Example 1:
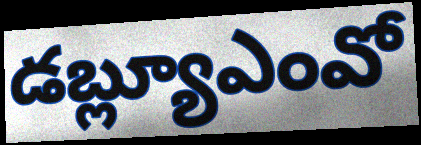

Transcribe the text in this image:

డబ్ల్యూఎంవో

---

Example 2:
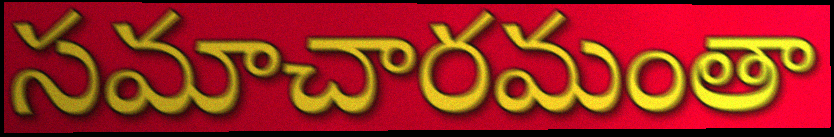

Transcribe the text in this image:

సమాచారమంతా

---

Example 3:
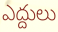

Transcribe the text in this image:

ఎద్దులు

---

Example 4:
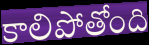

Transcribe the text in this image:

కాలిపోతోంది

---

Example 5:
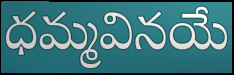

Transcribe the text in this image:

ధమ్మవినయే